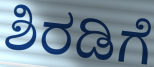
ಶಿರಡಿಗೆ